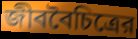
জীববৈচিত্রের